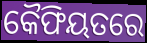
କୈଫିୟତରେ